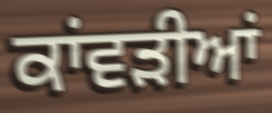
ਕਾਂਵੜੀਆਂ